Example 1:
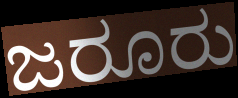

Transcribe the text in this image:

ಜರೂರು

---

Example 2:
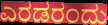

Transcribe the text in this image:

ಎರಡರಂದು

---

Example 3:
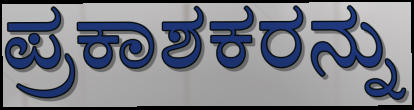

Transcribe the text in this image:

ಪ್ರಕಾಶಕರನ್ನು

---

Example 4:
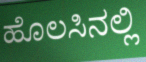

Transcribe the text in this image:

ಹೊಲಸಿನಲ್ಲಿ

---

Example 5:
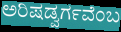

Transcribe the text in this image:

ಅರಿಷಡ್ವರ್ಗವೆಂಬ